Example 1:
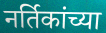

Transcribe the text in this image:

नर्तिकांच्या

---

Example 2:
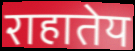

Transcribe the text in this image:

राहातेय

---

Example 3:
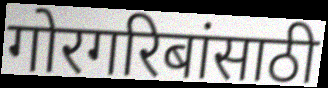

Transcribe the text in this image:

गोरगरिबांसाठी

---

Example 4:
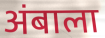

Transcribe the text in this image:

अंबाला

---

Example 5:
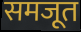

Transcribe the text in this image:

समजूत